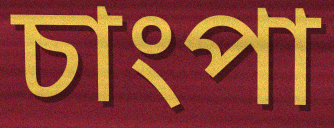
চাংপা